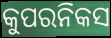
କୁପରନିକସ